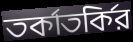
তর্কাতর্কির